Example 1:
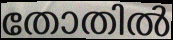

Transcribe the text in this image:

തോതിൽ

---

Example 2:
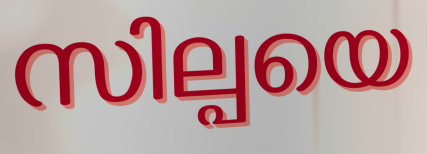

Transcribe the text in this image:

സില്പയെ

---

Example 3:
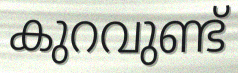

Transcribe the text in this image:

കുറവുണ്ട്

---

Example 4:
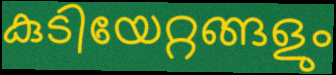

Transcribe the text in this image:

കുടിയേറ്റങ്ങളും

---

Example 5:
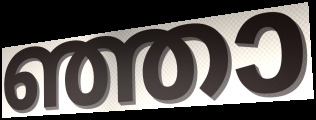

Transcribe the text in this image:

ഞ്ഞാ